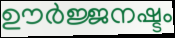
ഊർജ്ജനഷ്ടം